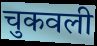
चुकवली